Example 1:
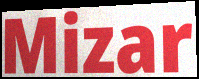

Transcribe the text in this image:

Mizar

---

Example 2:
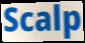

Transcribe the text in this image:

Scalp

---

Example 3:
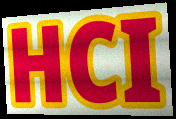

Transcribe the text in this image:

HCI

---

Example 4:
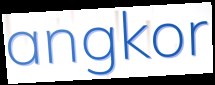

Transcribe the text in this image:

angkor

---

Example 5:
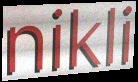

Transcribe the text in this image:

nikli